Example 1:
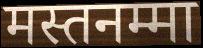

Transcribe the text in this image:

मस्तनम्मा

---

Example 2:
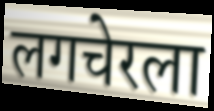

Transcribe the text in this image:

लगचेरला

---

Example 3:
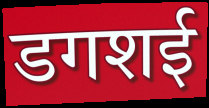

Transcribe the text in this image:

डगशई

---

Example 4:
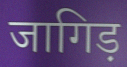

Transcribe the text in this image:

जागिड़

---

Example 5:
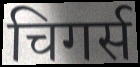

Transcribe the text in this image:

चिगर्स